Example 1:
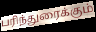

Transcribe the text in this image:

பரிந்துரைக்கும்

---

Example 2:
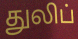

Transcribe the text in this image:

துலிப்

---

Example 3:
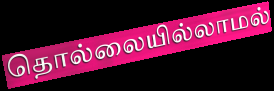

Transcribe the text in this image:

தொல்லையில்லாமல்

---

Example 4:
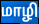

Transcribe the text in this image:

மாழி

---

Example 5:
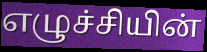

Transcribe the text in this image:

எழுச்சியின்